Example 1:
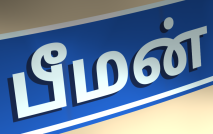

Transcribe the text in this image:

பீமன்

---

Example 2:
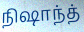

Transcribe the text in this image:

நிஷாந்த்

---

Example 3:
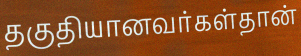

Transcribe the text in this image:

தகுதியானவர்கள்தான்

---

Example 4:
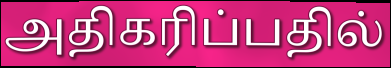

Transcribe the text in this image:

அதிகரிப்பதில்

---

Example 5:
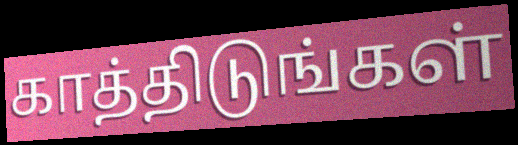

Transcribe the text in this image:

காத்திடுங்கள்